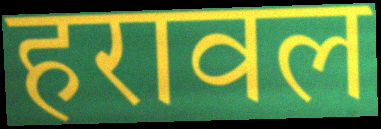
हरावल